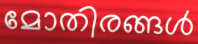
മോതിരങ്ങൾ